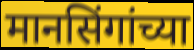
मानसिंगांच्या